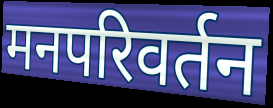
मनपरिवर्तन